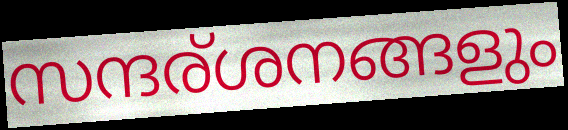
സന്ദര്ശനങ്ങളും